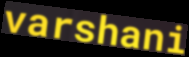
varshani